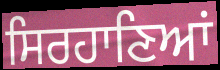
ਸਿਰਹਾਣਿਆਂ